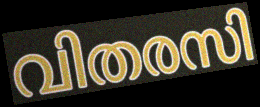
വിതരസി